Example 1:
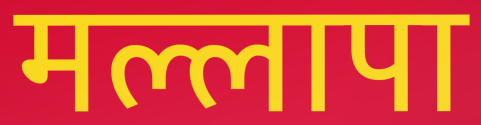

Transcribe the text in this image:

मल्लापा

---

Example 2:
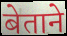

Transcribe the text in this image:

बेताने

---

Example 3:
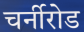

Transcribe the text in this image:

चर्नीरोड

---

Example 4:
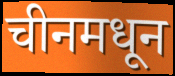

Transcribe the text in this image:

चीनमधून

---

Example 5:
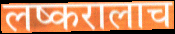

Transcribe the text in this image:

लष्करालाच